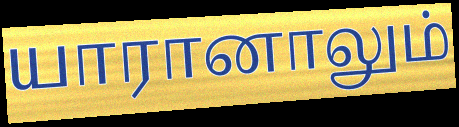
யாரானாலும்